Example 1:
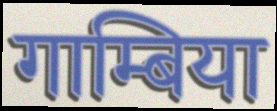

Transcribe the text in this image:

गाम्बिया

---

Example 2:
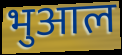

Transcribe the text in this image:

भुआल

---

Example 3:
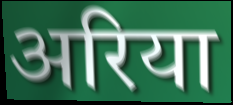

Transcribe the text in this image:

अरिया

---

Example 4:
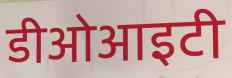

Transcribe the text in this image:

डीओआइटी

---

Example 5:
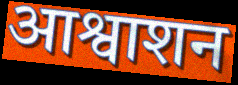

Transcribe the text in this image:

आश्वाशन